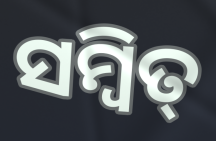
ସମ୍ବିତ୍